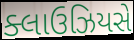
ક્લાઉઝિયસે